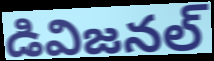
డివిజనల్